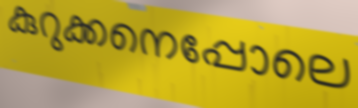
കുറുക്കനെപ്പോലെ